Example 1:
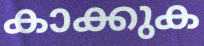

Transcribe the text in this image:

കാക്കുക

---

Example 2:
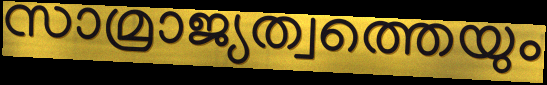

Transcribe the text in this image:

സാമ്രാജ്യത്വത്തെയും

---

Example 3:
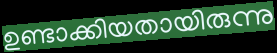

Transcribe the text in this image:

ഉണ്ടാക്കിയതായിരുന്നു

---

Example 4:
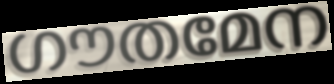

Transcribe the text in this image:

ഗൗതമേന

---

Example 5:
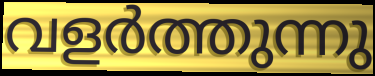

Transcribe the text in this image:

വളർത്തുന്നു